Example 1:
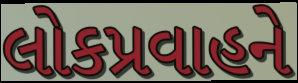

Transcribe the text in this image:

લોકપ્રવાહને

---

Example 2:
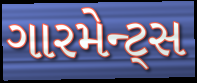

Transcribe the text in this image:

ગારમેન્ટ્સ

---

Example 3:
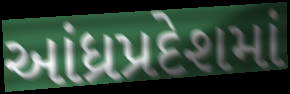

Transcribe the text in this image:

આંધ્રપ્રદેશમાં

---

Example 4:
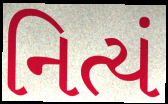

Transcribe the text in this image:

નિત્યં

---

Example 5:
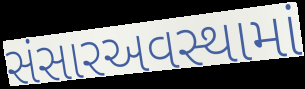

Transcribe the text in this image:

સંસારઅવસ્થામાં